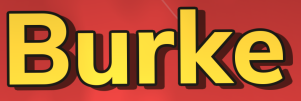
Burke